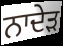
ਨਾਦੇੜ